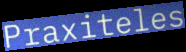
Praxiteles